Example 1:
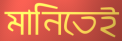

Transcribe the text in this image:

মানিতেই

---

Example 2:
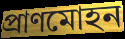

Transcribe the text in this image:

প্রাণমোহন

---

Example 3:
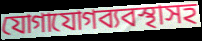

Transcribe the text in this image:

যোগাযোগব্যবস্থাসহ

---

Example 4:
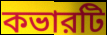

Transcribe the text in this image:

কভারটি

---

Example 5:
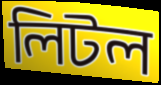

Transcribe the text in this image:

লিটল